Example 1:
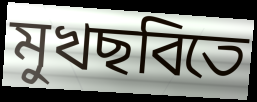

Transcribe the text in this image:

মুখছবিতে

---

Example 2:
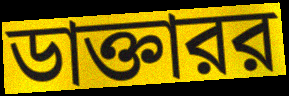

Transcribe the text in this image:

ডাক্তারর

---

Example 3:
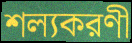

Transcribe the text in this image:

শল্যকরণী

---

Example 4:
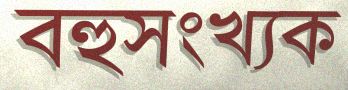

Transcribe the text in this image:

বহুসংখ্যক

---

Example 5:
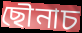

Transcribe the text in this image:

ছৌনাচ